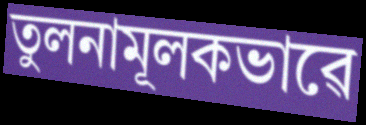
তুলনামূলকভাৱে